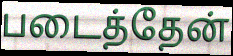
படைத்தேன்